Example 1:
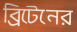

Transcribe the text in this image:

ব্রিটেনের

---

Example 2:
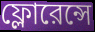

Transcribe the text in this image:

ফ্লোরেন্সে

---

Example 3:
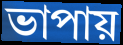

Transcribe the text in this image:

ভাপায়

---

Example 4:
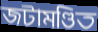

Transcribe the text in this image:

জটামণ্ডিত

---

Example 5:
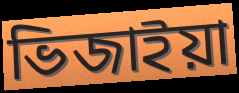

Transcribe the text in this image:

ভিজাইয়া